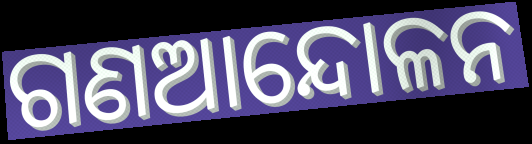
ଗଣଆନ୍ଦୋଳନ